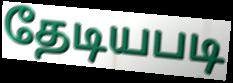
தேடியபடி